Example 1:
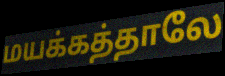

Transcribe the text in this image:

மயக்கத்தாலே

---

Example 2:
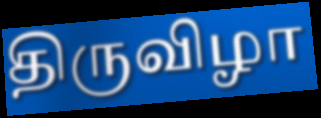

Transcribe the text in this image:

திருவிழா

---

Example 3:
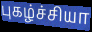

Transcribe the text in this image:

புகழ்ச்சியா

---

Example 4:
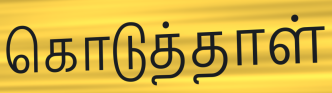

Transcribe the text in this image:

கொடுத்தாள்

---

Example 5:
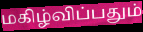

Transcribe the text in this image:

மகிழ்விப்பதும்